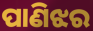
ପାଣିଝର